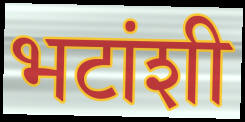
भटांशी